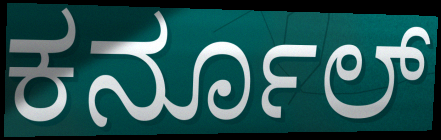
ಕರ್ನೂಲ್